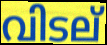
വിടല്